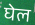
घेल